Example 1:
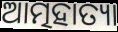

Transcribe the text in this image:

ଆତ୍ମହାତ୍ୟା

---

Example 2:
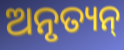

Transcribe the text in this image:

ଅନୃତ୍ୟନ୍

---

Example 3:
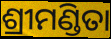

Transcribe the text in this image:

ଶ୍ରୀମଣ୍ଡିତା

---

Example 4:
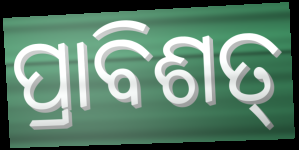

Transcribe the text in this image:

ପ୍ରାବିଶତ୍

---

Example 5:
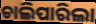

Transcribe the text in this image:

ଚାଲିପାରିଲା